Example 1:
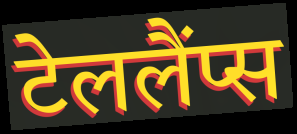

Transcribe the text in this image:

टेललैंप्स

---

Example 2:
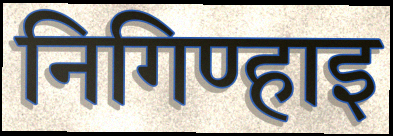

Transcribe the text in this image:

निगिण्हाइ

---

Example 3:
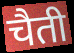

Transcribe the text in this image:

चैती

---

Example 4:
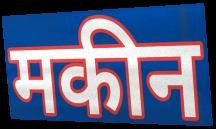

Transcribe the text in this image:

मकीन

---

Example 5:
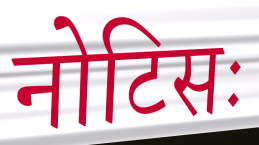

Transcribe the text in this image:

नोटिसः